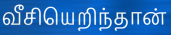
வீசியெறிந்தான்